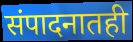
संपादनातही